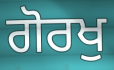
ਗੋਰਖੁ